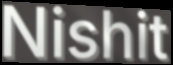
Nishit